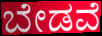
ಬೇಡವೆ